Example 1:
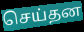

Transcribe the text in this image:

செய்தன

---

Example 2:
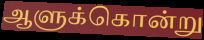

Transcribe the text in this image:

ஆளுக்கொன்று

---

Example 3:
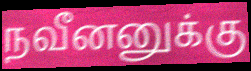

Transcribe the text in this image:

நவீனனுக்கு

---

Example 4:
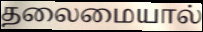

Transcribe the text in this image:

தலைமையால்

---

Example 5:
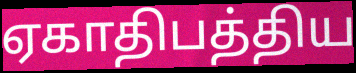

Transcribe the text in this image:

ஏகாதிபத்திய